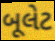
બૂલેટ